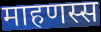
माहणस्स